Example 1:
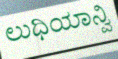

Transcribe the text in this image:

ಲುಧಿಯಾನ್ವಿ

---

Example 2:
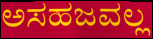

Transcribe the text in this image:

ಅಸಹಜವಲ್ಲ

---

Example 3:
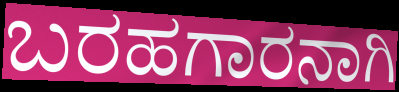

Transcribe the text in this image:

ಬರಹಗಾರನಾಗಿ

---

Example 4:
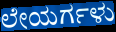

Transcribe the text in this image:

ಲೇಯರ್ಗಳು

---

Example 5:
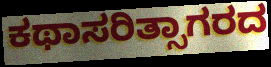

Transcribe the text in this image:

ಕಥಾಸರಿತ್ಸಾಗರದ